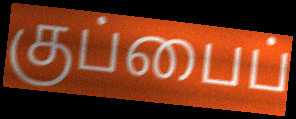
குப்பைப்